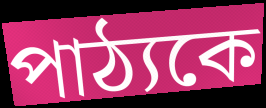
পাঠ্যকে